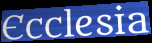
Ecclesia